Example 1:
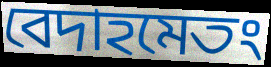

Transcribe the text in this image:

বেদাহমেতং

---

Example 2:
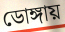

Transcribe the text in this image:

ডোঙ্গায়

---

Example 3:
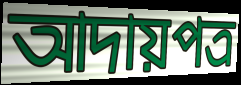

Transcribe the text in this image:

আদায়পত্র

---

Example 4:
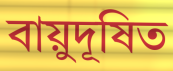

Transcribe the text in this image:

বায়ুদূষিত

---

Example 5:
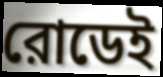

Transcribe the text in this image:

রোডেই